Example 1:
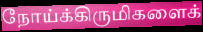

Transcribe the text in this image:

நோய்க்கிருமிகளைக்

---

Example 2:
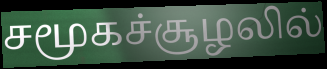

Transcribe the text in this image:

சமூகச்சூழலில்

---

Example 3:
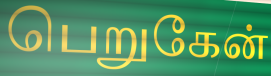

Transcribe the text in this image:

பெறுகேன்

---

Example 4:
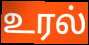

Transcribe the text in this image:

உரல்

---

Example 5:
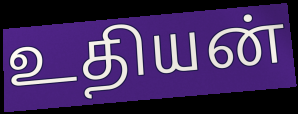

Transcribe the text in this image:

உதியன்